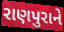
રાણપુરાને